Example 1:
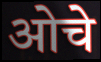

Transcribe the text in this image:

ओचे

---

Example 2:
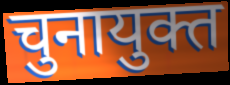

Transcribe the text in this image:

चुनायुक्त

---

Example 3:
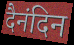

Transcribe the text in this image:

दैनंदिन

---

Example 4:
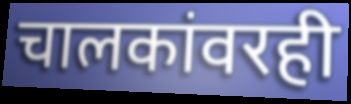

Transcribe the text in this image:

चालकांवरही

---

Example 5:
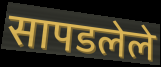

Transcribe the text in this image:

सापडलेले